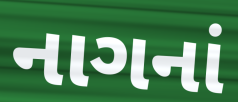
નાગનાં